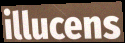
illucens